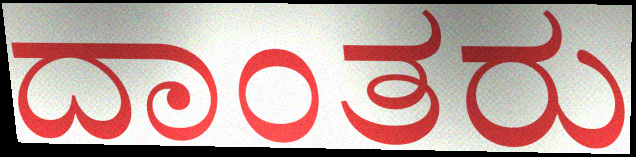
ದಾಂತರು